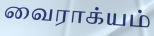
வைராக்யம்